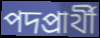
পদপ্রার্থী